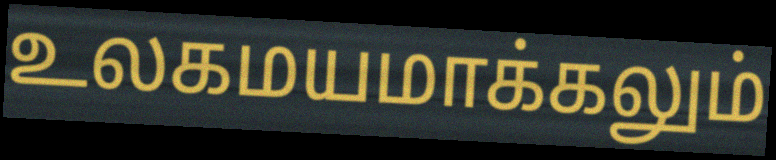
உலகமயமாக்கலும்